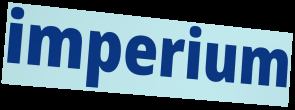
imperium